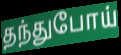
தந்துபோய்